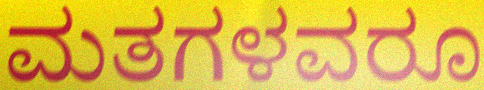
ಮತಗಳವರೂ